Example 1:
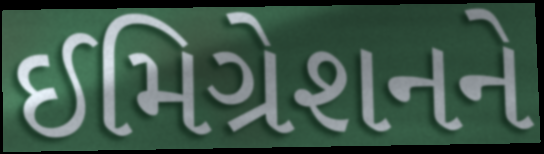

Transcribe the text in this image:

ઈમિગ્રેશનને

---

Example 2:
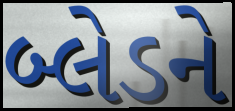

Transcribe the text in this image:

બ્લેડને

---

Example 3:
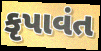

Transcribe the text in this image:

કૃપાવંત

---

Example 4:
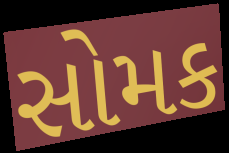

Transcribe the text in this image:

સોમક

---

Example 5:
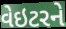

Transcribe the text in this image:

વેઇટરને